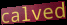
calved